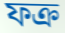
ফক্র